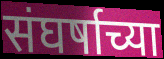
संघर्षाच्या